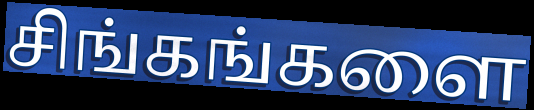
சிங்கங்களை